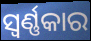
ସ୍ୱର୍ଣ୍ଣକାର